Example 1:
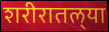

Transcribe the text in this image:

शरीरातल्या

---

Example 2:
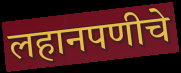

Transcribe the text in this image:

लहानपणीचे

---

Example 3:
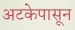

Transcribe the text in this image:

अटकेपासून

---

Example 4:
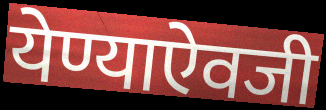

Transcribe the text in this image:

येण्याऐवजी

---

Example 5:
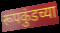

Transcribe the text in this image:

रूपकुंडच्या